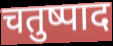
चतुष्पाद